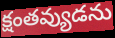
క్షంతవ్యుడను